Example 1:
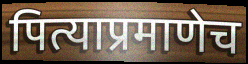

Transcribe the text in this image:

पित्याप्रमाणेच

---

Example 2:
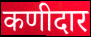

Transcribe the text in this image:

कणीदार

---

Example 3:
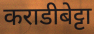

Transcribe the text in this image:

कराडीबेट्टा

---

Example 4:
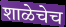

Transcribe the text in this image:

शाळेचेच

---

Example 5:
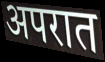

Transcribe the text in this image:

अपरात